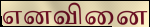
எனவினை